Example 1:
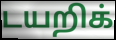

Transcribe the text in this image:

டயறிக்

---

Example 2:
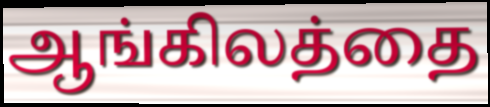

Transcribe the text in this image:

ஆங்கிலத்தை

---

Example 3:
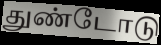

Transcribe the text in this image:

துண்டோடு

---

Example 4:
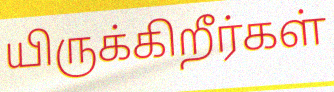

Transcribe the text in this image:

யிருக்கிறீர்கள்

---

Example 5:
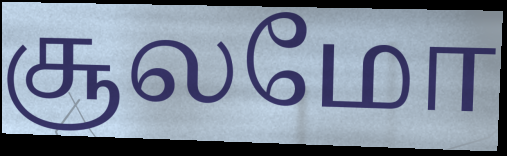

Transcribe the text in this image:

சூலமோ